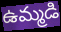
ఉమ్మడి